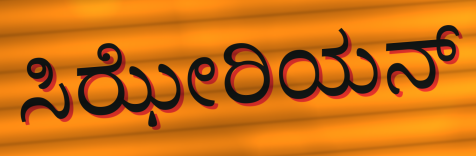
ಸಿಝೇರಿಯನ್